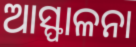
ଆସ୍ଫାଳନା